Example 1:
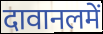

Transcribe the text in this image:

दावानलमें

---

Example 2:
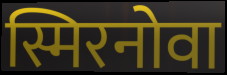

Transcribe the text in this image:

स्मिरनोवा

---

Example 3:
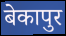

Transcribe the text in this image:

बेकापुर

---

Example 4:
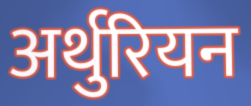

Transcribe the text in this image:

अर्थुरियन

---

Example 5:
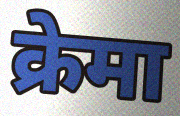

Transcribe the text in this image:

क्रेमा